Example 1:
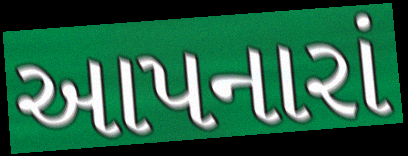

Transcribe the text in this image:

આપનારાં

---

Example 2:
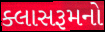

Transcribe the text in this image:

ક્લાસરૂમનો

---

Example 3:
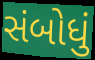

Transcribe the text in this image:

સંબોધું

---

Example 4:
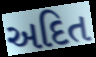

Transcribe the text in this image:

અદિત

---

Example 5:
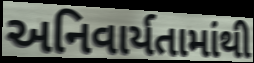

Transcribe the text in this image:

અનિવાર્યતામાંથી